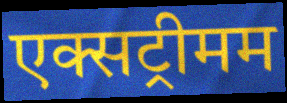
एक्सट्रीमम